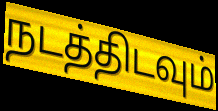
நடத்திடவும்